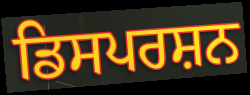
ਡਿਸਪਰਸ਼ਨ